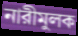
নারীমুলক